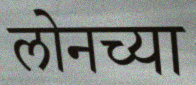
लोनच्या